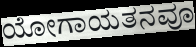
ಯೋಗಾಯತನವೂ